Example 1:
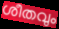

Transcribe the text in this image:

ശീതവും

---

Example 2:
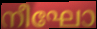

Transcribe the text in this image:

നീഘോ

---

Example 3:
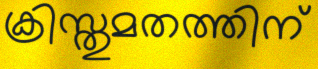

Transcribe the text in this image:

ക്രിസ്തുമതത്തിന്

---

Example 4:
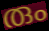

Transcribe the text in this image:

രും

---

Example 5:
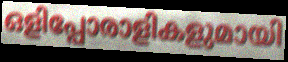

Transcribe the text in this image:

ഒളിപ്പോരാളികളുമായി